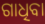
ଗାଧିବା